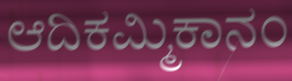
ಆದಿಕಮ್ಮಿಕಾನಂ